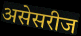
असेसरीज